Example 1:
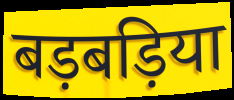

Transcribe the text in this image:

बड़बड़िया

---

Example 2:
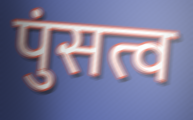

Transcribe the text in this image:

पुंसत्व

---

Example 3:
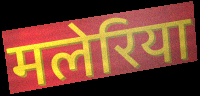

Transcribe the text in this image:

मलेरिया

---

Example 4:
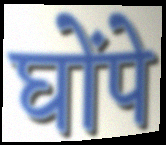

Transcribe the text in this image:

घोंपे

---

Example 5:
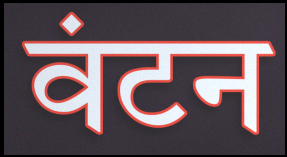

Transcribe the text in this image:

वंटन